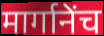
मार्गानेंच